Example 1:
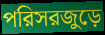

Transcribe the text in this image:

পরিসরজুড়ে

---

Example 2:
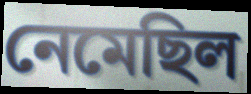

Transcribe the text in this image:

নেমেছিল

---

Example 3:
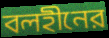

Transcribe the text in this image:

বলহীনের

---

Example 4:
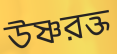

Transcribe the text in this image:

উষ্ণরক্ত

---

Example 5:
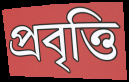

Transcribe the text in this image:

প্রবৃত্তি